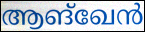
ആങ്ഖേൻ